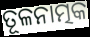
ତୂଳନାତ୍ମକ